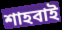
শাহবাই